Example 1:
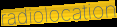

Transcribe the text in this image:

radiolocation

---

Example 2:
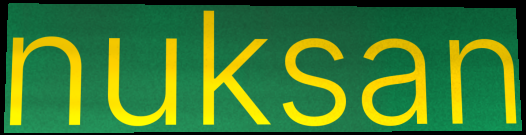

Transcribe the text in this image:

nuksan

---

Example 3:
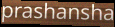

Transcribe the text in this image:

prashansha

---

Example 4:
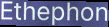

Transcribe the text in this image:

Ethephon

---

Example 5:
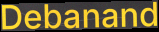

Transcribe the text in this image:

Debanand